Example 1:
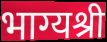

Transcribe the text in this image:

भाग्यश्री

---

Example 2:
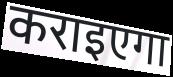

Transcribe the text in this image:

कराइएगा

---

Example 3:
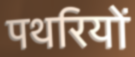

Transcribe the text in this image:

पथरियों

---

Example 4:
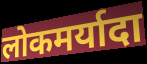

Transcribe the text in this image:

लोकमर्यादा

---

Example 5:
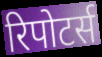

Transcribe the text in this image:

रिपोटर्स